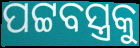
ପଟ୍ଟବସ୍ତ୍ରକୁ